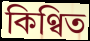
কিণ্বিত